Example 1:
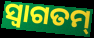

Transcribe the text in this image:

ସ୍ୱାଗତମ୍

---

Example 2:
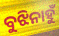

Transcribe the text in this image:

ବୁଝିନାହୁଁ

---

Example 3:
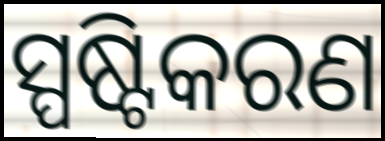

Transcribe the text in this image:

ସ୍ପଷ୍ଟିକରଣ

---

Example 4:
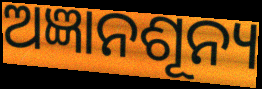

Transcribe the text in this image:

ଅଜ୍ଞାନଶୂନ୍ୟ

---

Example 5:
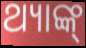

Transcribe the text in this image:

ଥ୍ୟାଙ୍କ୍